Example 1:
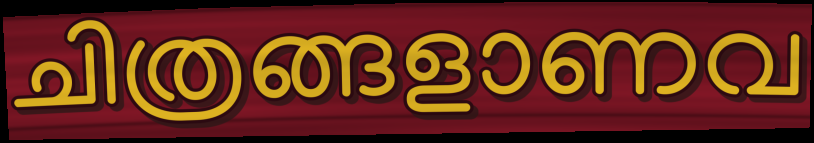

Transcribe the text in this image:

ചിത്രങ്ങളാണവ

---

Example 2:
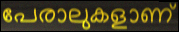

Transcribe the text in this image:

പേരാലുകളാണ്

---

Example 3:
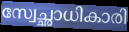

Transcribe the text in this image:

സ്വേച്ഛാധികാരി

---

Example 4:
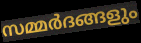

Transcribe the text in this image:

സമ്മർദങ്ങളും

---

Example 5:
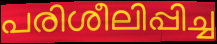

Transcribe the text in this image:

പരിശീലിപ്പിച്ച